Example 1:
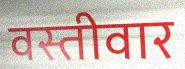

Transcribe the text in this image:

वस्तीवार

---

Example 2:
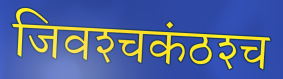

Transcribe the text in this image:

जिवश्चकंठश्च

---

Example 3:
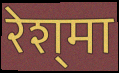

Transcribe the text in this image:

रेश्मा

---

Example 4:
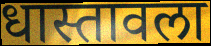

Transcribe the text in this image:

धास्तावला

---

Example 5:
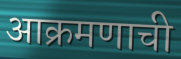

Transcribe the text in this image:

आक्रमणाची